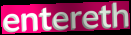
entereth